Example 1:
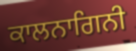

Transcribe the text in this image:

ਕਾਲਨਾਗਿਨੀ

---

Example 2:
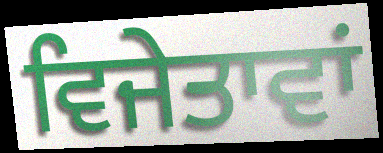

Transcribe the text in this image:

ਵਿਜੇਤਾਵਾਂ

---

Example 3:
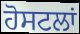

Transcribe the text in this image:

ਹੋਸਟਲਾਂ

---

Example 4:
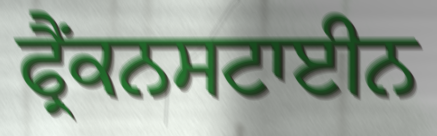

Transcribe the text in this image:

ਫ੍ਰੈਂਕਨਸਟਾਈਨ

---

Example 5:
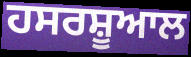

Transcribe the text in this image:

ਹਸਰਸ਼ੂਆਲ